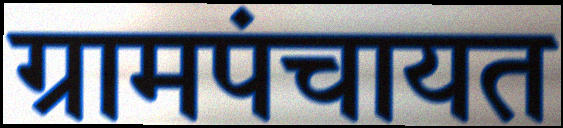
ग्रामपंचायत